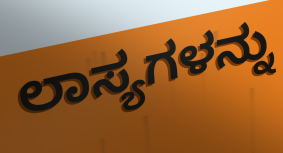
ಲಾಸ್ಯಗಳನ್ನು